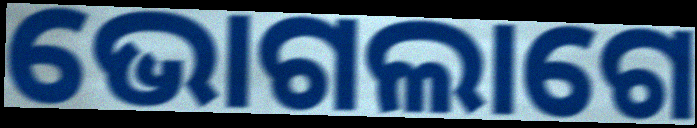
ଭୋଗଲାଗେ